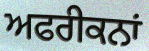
ਅਫਰੀਕਨਾਂ